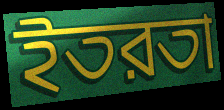
ইতরতা